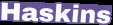
Haskins